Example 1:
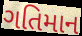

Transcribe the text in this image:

ગતિમાન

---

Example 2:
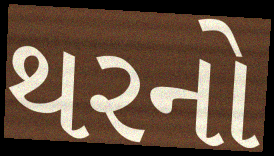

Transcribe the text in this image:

થરનો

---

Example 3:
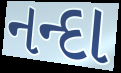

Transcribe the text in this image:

નન્દા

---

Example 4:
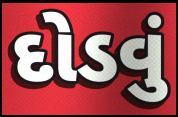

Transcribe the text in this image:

દોડવું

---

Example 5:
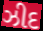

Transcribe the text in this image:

ઝીદ